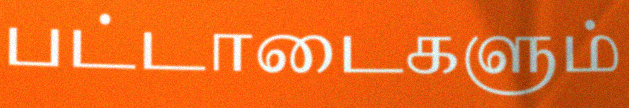
பட்டாடைகளும்